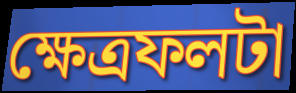
ক্ষেত্রফলটা